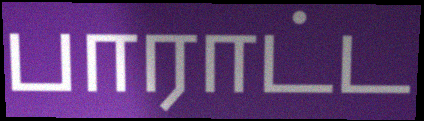
பாராட்ட